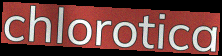
chlorotica